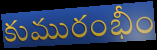
కుమురంభీం